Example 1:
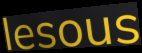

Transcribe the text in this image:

Iesous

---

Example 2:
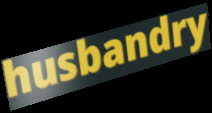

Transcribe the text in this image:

husbandry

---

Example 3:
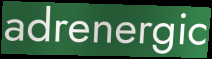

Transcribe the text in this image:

adrenergic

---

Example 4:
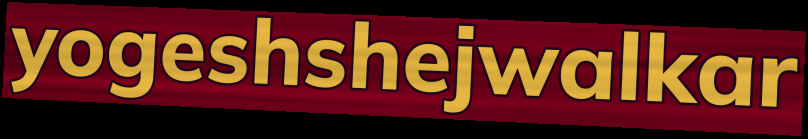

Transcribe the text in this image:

yogeshshejwalkar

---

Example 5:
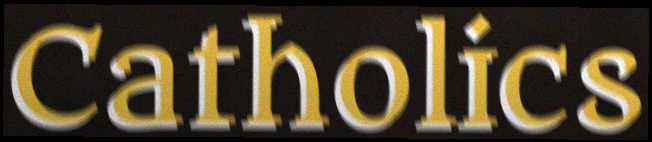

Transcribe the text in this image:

Catholics